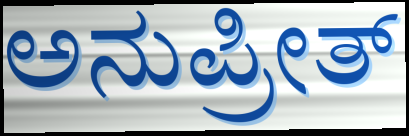
ಅನುಪ್ರೀತ್